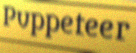
Puppeteer